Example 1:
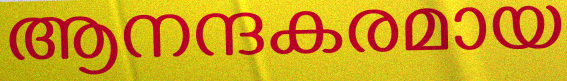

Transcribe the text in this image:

ആനന്ദകരമായ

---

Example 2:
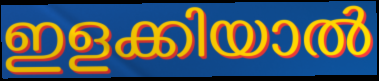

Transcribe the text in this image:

ഇളക്കിയാൽ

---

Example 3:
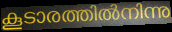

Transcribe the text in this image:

കൂടാരത്തിൽനിന്നു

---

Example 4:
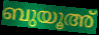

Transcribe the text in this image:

ബുയൂഅ്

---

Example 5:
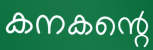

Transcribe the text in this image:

കനകന്റെ